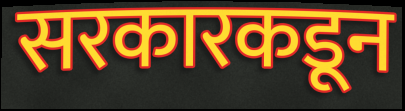
सरकारकडून